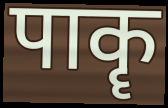
पाकॄ